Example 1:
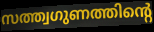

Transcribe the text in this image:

സത്ത്വഗുണത്തിന്റെ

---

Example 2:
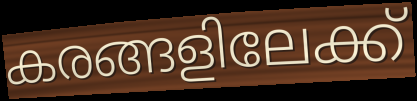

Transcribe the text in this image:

കരങ്ങളിലേക്ക്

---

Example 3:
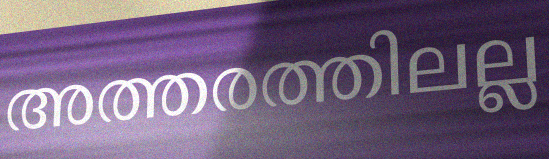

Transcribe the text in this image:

അത്തരത്തിലല്ല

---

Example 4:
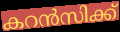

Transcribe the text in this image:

കറൻസിക്ക്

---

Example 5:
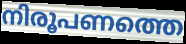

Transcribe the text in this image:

നിരൂപണത്തെ